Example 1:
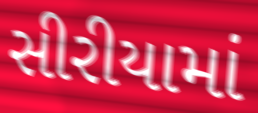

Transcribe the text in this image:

સીરીયામાં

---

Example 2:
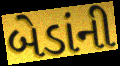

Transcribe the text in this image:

બેડાંની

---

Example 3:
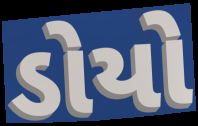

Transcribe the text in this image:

ડોયો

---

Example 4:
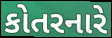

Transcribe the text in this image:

કોતરનારે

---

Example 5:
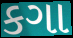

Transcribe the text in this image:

કગા